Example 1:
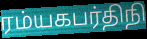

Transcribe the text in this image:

ரம்யகபர்திநி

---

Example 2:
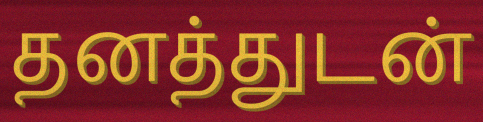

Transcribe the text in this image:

தனத்துடன்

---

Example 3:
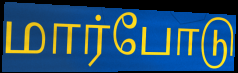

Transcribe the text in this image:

மார்போடு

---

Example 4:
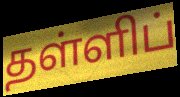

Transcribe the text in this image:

தள்ளிப்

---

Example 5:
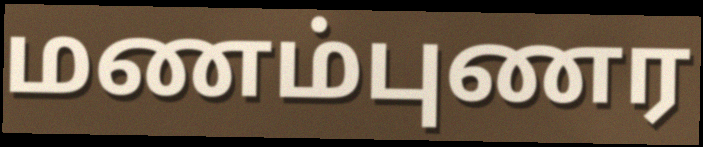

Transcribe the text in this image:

மணம்புணர